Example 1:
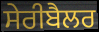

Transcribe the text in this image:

ਸੇਰੀਬੈਲਰ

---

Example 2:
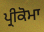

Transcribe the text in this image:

ਪ੍ਰੀਕੋਮਾ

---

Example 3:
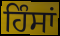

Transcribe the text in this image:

ਹਿੰਸਾਂ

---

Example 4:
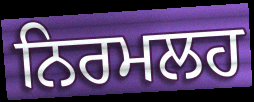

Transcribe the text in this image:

ਨਿਰਮਲਹ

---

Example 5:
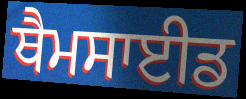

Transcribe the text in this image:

ਥੈਮਸਾਈਡ